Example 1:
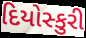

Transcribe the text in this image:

દિયોસ્કુરી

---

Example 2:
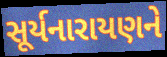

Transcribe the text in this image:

સૂર્યનારાયણને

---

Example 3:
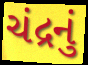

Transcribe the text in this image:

ચંદ્રનું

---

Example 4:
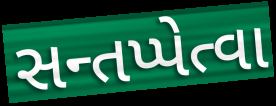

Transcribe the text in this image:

સન્તપ્પેત્વા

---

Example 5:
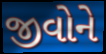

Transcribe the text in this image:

જીવોને